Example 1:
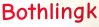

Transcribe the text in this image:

Bothlingk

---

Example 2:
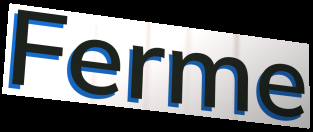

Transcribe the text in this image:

Ferme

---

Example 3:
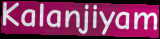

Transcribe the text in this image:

Kalanjiyam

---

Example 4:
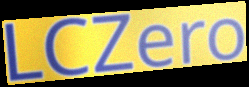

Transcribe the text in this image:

LCZero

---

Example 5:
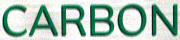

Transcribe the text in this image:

CARBON